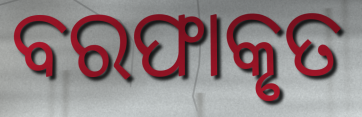
ବରଫାକୃତ